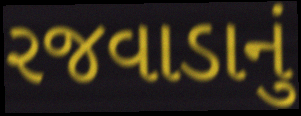
રજવાડાનું